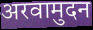
अरवामुदन